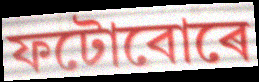
ফটোবোৰে